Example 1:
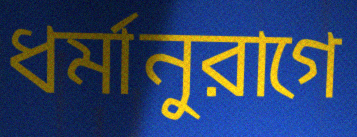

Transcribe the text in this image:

ধর্মানুরাগে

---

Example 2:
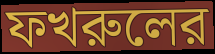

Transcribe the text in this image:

ফখরুলের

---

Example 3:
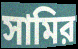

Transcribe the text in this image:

সামির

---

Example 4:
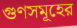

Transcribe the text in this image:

গুণসমূহের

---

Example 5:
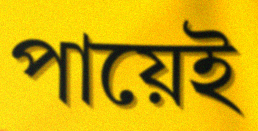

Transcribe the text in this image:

পায়েই